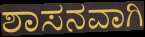
ಶಾಸನವಾಗಿ